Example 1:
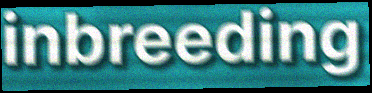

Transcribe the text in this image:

inbreeding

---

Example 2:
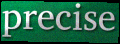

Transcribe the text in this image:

precise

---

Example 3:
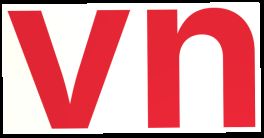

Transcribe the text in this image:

vn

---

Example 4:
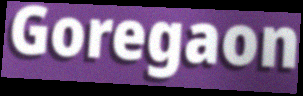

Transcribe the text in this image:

Goregaon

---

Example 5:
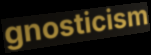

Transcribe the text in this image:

gnosticism